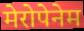
मेरोपेनेम